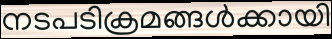
നടപടിക്രമങ്ങൾക്കായി